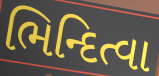
ભિન્દિત્વા